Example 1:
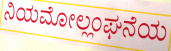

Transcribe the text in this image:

ನಿಯಮೋಲ್ಲಂಘನೆಯ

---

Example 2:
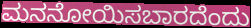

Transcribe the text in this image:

ಮನನೋಯಿಸಬಾರದೆಂದು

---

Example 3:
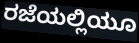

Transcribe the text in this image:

ರಜೆಯಲ್ಲಿಯೂ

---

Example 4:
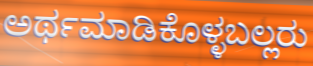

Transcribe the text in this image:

ಅರ್ಥಮಾಡಿಕೊಳ್ಳಬಲ್ಲರು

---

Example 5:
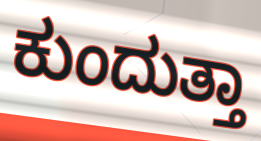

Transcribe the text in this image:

ಕುಂದುತ್ತಾ